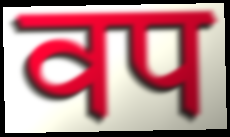
वप